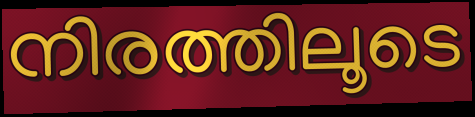
നിരത്തിലൂടെ